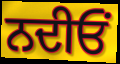
ਨਦੀਓਂ